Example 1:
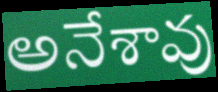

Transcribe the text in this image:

అనేశావు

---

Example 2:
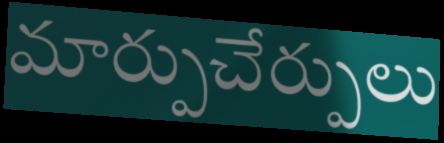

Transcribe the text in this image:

మార్పుచేర్పులు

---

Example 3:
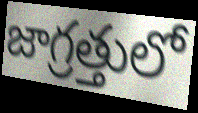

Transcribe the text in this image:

జాగ్రత్తులో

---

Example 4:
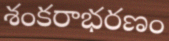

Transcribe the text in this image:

శంకరాభరణం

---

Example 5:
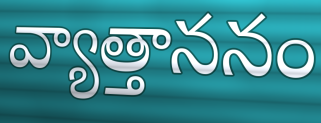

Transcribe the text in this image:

వ్యాత్తాననం